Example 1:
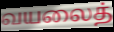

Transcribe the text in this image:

வயலைத்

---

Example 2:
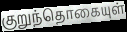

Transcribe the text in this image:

குறுந்தொகையுள்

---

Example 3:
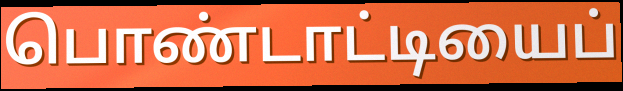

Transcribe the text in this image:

பொண்டாட்டியைப்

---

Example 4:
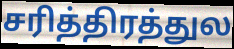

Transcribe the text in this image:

சரித்திரத்துல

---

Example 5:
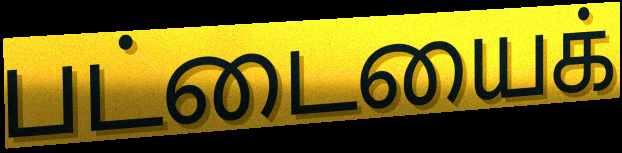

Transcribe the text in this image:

பட்டையைக்